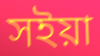
সইয়া